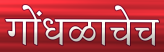
गोंधळाचेच